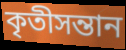
কৃতীসন্তান